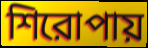
শিরোপায়